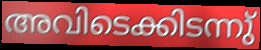
അവിടെക്കിടന്നു്